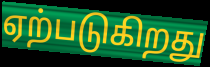
ஏற்படுகிறது